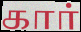
கார்